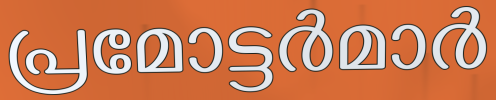
പ്രമോട്ടർമാർ